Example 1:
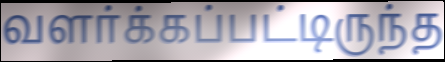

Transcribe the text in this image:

வளர்க்கப்பட்டிருந்த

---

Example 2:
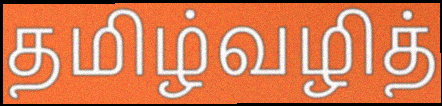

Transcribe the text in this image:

தமிழ்வழித்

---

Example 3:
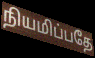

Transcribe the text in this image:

நியமிப்பதே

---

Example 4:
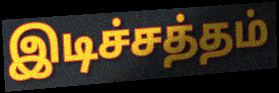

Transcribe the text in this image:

இடிச்சத்தம்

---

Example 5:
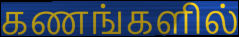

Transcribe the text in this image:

கணங்களில்